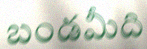
బండమీది